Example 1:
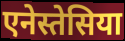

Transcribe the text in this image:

एनेस्तेसिया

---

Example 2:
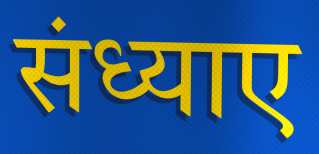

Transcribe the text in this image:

संध्याए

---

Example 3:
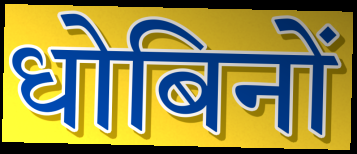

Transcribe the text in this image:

धोबिनों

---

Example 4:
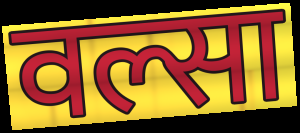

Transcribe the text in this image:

वल्सा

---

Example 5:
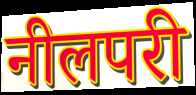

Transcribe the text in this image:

नीलपरी